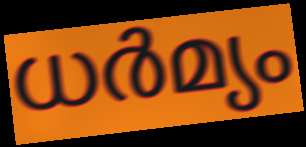
ധർമ്യം